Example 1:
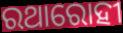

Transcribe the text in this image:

ରଥାରୋହୀ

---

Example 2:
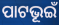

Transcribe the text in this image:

ପାଟଭୂଇଁ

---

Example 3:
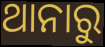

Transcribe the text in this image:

ଥାନାରୁ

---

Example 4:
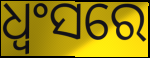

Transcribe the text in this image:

ଧ୍ୱଂସରେ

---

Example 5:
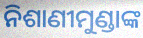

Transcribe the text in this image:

ନିଶାଣୀମୁଣ୍ଡାଙ୍କ